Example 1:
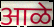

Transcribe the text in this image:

आळे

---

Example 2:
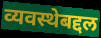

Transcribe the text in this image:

व्यवस्थेबद्दल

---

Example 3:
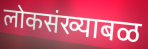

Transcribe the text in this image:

लोकसंख्याबळ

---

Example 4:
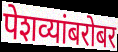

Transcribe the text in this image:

पेशव्यांबरोबर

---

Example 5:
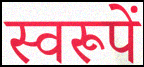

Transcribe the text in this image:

स्वरूपें